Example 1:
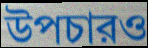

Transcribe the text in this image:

উপচারও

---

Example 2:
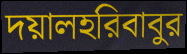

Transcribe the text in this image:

দয়ালহরিবাবুর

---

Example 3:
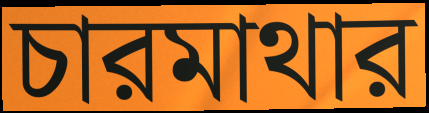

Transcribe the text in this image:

চারমাথার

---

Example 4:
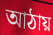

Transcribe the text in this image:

আঠায়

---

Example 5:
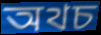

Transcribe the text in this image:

অথচ